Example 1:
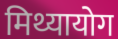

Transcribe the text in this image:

मिथ्यायोग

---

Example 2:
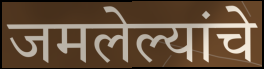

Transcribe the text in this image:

जमलेल्यांचे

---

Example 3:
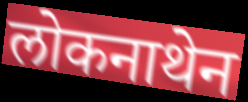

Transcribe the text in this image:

लोकनाथेन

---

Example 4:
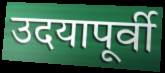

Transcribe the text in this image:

उदयापूर्वी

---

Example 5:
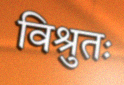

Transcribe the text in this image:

विश्रुतः